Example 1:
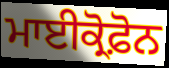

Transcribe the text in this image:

ਮਾਈਕ੍ਰੋਫ਼ੋਨ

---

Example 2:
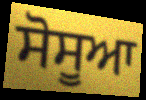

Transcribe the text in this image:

ਸੋਸੂਆ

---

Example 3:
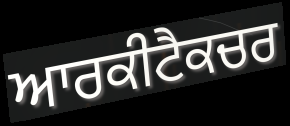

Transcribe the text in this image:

ਆਰਕੀਟੈਕਚਰ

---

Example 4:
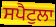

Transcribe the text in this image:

ਸਪੈਟੁਲਾ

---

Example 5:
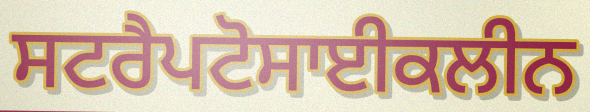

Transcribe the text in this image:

ਸਟਰੈਪਟੋਸਾਈਕਲੀਨ